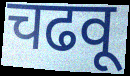
चढवू